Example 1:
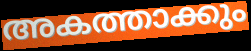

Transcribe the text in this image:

അകത്താക്കും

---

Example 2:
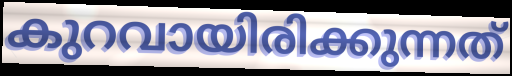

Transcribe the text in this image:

കുറവായിരിക്കുന്നത്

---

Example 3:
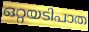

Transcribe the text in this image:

ഒറ്റയടിപാത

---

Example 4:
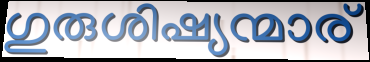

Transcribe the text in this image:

ഗുരുശിഷ്യന്മാര്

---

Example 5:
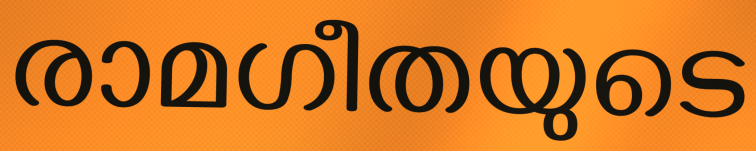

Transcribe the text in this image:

രാമഗീതയുടെ